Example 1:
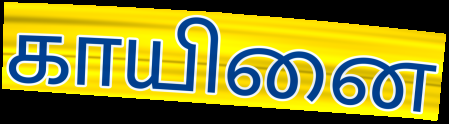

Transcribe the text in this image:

காயினை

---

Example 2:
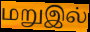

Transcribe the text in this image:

மறுஇல்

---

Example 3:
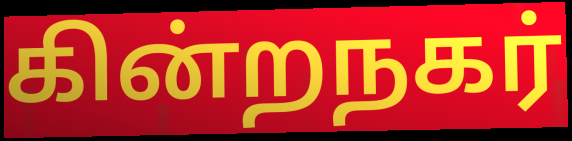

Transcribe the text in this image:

கின்றநகர்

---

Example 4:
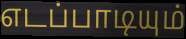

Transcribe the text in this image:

எடப்பாடியும்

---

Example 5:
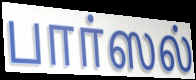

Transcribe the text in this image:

பார்ஸல்